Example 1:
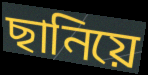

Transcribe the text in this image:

ছানিয়ে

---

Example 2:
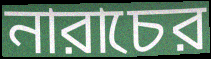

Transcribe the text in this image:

নারাচের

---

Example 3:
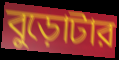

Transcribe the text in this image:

বুড়োটার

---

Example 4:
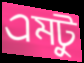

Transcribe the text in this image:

এমটু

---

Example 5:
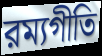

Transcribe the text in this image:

রম্যগীতি